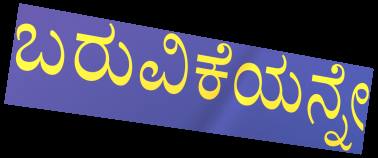
ಬರುವಿಕೆಯನ್ನೇ